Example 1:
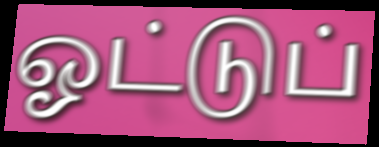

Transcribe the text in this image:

ஓட்டுப்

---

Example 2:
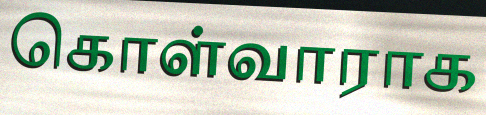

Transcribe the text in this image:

கொள்வாராக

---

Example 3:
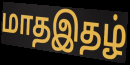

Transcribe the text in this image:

மாதஇதழ்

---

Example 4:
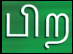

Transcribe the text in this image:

பிற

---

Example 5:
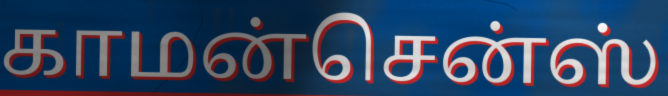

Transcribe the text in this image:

காமன்சென்ஸ்